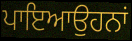
ਪਾਇਆਉਹਨਾਂ